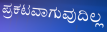
ಪ್ರಕಟವಾಗುವುದಿಲ್ಲ